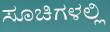
ಸೂಚಿಗಳಲ್ಲಿ